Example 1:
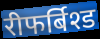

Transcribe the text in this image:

रीफर्बिश्ड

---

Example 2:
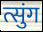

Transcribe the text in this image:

त्सुंग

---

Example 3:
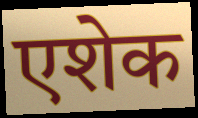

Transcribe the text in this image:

एशेक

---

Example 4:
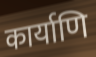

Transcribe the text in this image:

कार्याणि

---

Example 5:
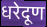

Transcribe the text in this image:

धरेदूण